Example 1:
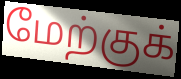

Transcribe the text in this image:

மேற்குக்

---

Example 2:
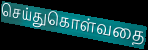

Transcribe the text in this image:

செய்துகொள்வதை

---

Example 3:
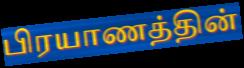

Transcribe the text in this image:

பிரயாணத்தின்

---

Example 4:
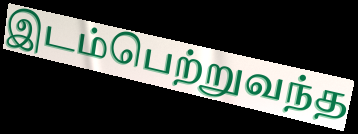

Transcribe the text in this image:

இடம்பெற்றுவந்த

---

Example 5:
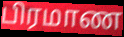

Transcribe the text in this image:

பிரமாண